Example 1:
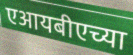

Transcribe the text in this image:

एआयबीएच्या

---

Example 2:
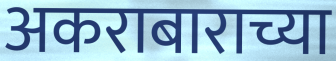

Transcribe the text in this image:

अकराबाराच्या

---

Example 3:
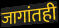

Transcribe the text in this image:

जागांतही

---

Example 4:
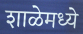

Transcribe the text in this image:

शाळेमध्ये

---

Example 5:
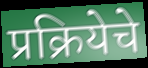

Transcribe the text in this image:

प्रक्रियेचे